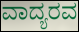
ವಾದ್ಯರವ